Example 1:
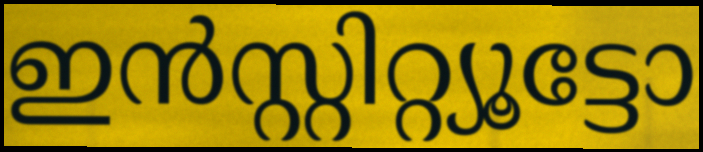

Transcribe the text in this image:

ഇൻസ്റ്റിറ്റ്യൂട്ടോ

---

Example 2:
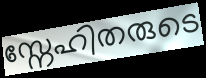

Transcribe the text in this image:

സ്നേഹിതരുടെ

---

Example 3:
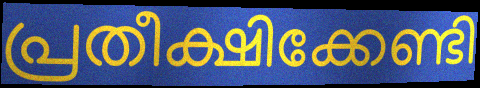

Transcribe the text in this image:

പ്രതീക്ഷിക്കേണ്ടി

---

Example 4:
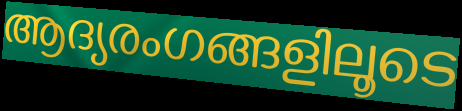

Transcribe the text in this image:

ആദ്യരംഗങ്ങളിലൂടെ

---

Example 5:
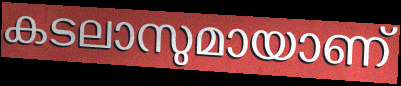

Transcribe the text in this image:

കടലാസുമായാണ്